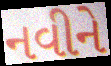
નવીને